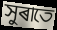
সুৰাতে